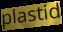
plastid